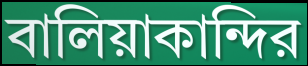
বালিয়াকান্দির